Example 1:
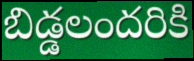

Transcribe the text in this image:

బిడ్డలందరికి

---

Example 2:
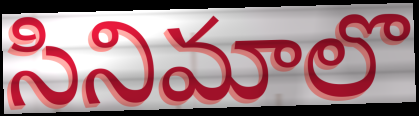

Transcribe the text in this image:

సినిమాలొ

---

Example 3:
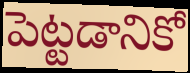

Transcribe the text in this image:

పెట్టడానికో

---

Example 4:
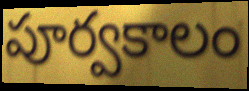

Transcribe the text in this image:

పూర్వకాలం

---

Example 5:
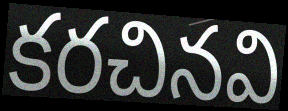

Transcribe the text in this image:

కరచినవి